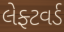
લેફ્ટવર્ડ